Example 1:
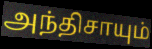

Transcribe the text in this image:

அந்திசாயும்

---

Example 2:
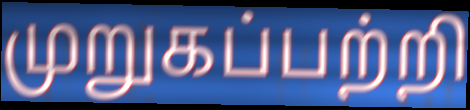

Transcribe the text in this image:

முறுகப்பற்றி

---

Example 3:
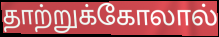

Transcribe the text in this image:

தாற்றுக்கோலால்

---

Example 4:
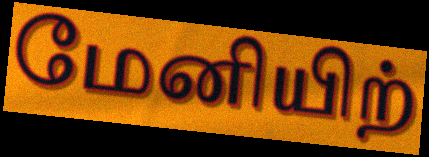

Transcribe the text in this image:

மேனியிற்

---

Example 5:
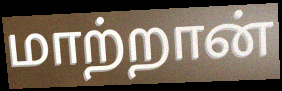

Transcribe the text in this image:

மாற்றான்